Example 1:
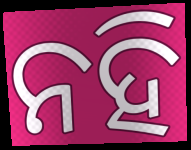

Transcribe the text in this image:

ନହି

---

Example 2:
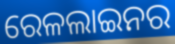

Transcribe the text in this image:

ରେଳଲାଇନର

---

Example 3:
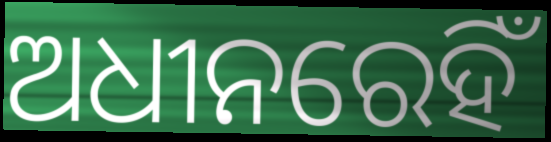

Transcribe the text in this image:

ଅଧୀନରେହିଁ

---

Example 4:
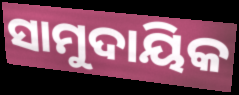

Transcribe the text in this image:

ସାମୁଦାୟିକ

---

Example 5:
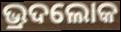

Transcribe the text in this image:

ଭ୍ରଦଲୋକ